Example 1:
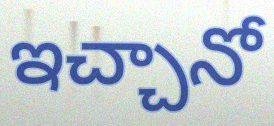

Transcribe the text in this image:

ఇచ్చానో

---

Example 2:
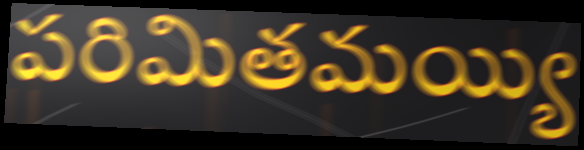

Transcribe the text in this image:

పరిమితమయ్యి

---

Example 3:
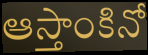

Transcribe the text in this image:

ఆస్తాంకినో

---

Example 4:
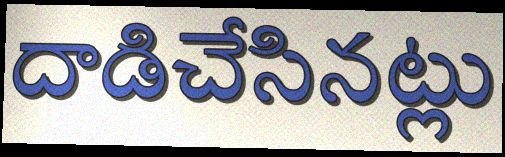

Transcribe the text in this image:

దాడిచేసినట్లు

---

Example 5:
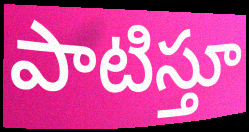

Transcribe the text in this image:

పాటిస్తూ